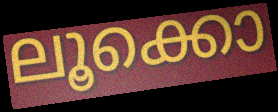
ലൂക്കൊ